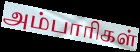
அம்பாரிகள்